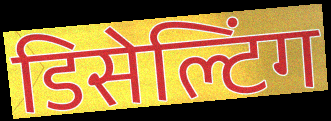
डिसेल्टिंग